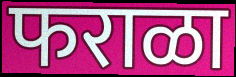
फराळा